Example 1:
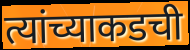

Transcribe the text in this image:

त्यांच्याकडची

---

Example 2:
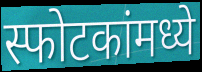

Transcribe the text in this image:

स्फोटकांमध्ये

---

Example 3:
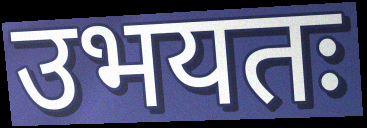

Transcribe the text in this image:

उभयतः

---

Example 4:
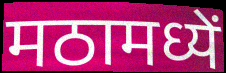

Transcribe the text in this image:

मठामध्यें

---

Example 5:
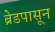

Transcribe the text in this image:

ब्रेडपासून